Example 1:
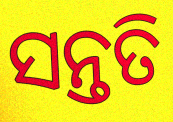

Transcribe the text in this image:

ସନ୍ତତି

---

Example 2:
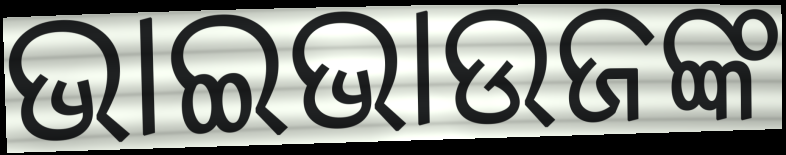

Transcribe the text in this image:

ଭାଇଭାଉଜଙ୍କ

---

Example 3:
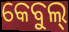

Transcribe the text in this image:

କେବୁଲ୍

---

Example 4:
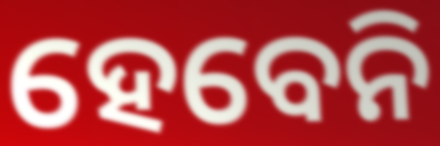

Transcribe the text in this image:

ହେବେନି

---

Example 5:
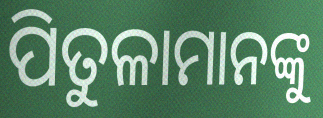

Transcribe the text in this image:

ପିତୁଳାମାନଙ୍କୁ